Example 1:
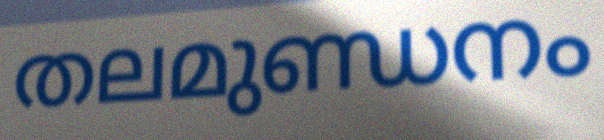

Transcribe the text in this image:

തലമുണ്ഡനം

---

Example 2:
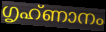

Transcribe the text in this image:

ഗൃഹ്ണാനം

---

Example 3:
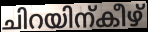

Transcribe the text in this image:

ചിറയിന്കീഴ്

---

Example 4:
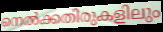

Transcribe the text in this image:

നെൽക്കതിരുകളിലും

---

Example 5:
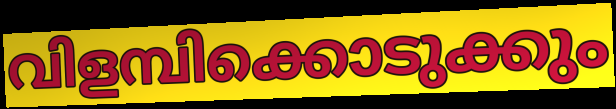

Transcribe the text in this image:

വിളമ്പിക്കൊടുക്കും